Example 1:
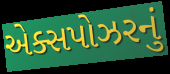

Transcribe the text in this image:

એક્સપોઝરનું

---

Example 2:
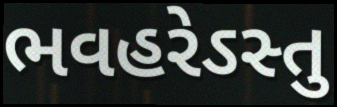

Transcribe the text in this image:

ભવહરેઽસ્તુ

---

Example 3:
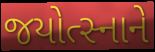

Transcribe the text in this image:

જયોત્સ્નાને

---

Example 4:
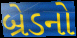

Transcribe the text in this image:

બ્રેડનો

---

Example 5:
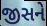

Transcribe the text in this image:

જીસને